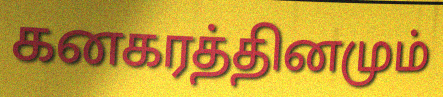
கனகரத்தினமும்